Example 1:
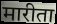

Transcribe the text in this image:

मारीता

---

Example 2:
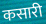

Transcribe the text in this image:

कसारी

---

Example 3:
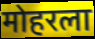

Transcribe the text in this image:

मोहरला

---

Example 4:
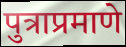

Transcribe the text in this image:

पुत्राप्रमाणे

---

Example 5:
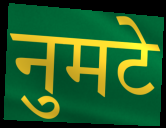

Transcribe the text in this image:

नुमटे